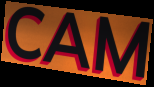
CAM